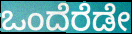
ಒಂದೆರೆಡೇ